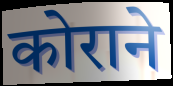
कोराने